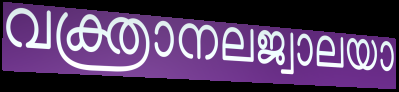
വക്ത്രാനലജ്വാലയാ